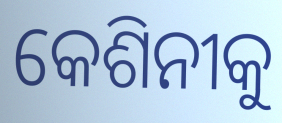
କେଶିନୀକୁ